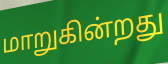
மாறுகின்றது